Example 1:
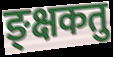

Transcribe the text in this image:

ङ्क्षकतु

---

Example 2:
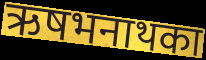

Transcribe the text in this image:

ऋषभनाथका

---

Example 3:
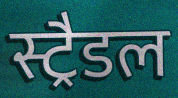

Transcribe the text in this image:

स्ट्रैडल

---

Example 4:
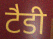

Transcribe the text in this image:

टैडी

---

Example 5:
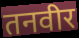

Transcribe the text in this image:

तनवीर